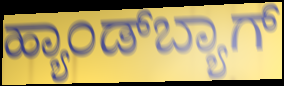
ಹ್ಯಾಂಡ್‌ಬ್ಯಾಗ್